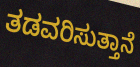
ತಡವರಿಸುತ್ತಾನೆ